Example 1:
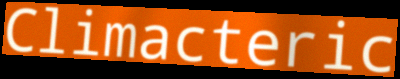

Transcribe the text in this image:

Climacteric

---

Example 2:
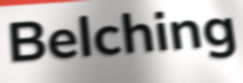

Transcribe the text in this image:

Belching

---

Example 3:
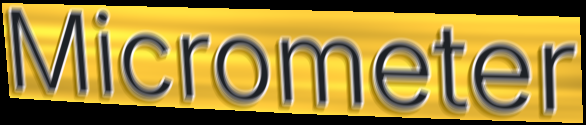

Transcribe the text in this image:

Micrometer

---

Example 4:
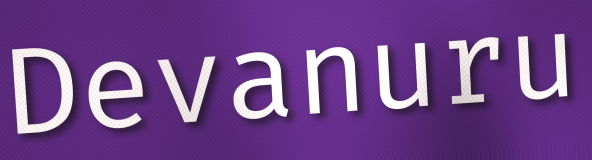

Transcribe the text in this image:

Devanuru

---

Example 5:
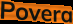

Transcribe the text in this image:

Povera